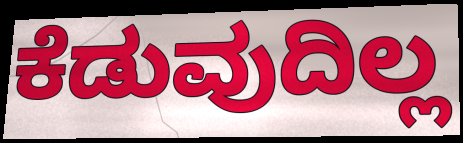
ಕೆಡುವುದಿಲ್ಲ